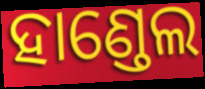
ହାଣ୍ଡେଲ